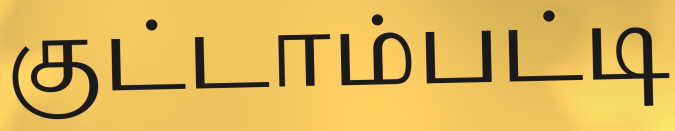
குட்டாம்பட்டி